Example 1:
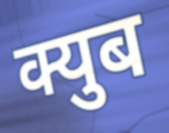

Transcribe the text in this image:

क्युब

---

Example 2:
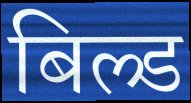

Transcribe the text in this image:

बिल्ड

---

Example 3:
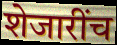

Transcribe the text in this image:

शेजारींच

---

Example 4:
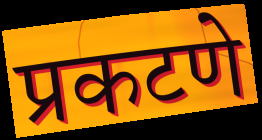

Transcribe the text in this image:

प्रकटणे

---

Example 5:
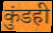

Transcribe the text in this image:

कुंडही